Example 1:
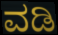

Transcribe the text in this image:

ವಡಿ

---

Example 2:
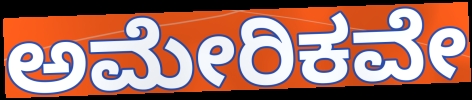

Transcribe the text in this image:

ಅಮೇರಿಕವೇ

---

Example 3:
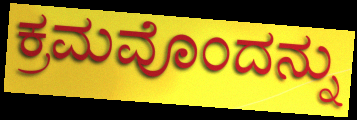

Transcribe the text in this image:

ಕ್ರಮವೊಂದನ್ನು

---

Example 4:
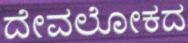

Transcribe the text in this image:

ದೇವಲೋಕದ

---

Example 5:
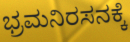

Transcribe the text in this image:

ಭ್ರಮನಿರಸನಕ್ಕೆ